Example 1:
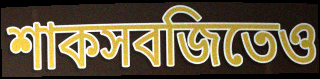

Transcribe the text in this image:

শাকসবজিতেও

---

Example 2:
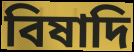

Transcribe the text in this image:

বিষাদি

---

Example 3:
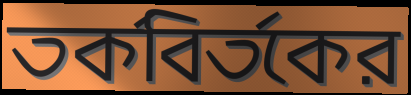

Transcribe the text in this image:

তর্কবির্তকের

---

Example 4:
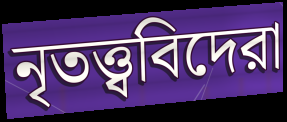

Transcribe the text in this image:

নৃতত্ত্ববিদেরা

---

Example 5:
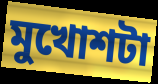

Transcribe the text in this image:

মুখোশটা